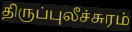
திருப்புலீச்சுரம்